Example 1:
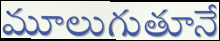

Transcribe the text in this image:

మూలుగుతూనే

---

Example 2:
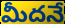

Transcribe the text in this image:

మీదనే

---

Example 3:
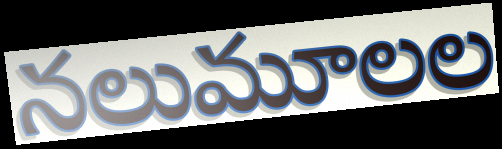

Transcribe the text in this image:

నలుమూలల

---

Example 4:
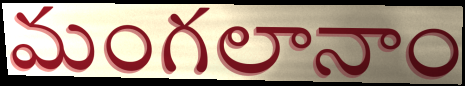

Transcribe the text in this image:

మంగలానాం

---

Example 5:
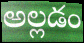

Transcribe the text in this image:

అల్లడం